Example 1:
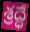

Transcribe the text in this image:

శ్రద్ధే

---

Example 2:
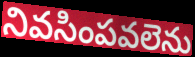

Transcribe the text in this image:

నివసింపవలెను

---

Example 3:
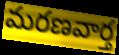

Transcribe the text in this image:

మరణవార్త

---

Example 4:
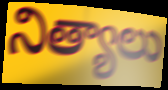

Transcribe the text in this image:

నిత్యాలు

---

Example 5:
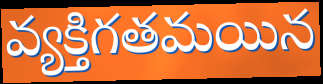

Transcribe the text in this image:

వ్యక్తిగతమయిన